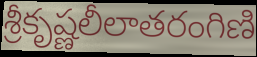
శ్రీకృష్ణలీలాతరంగిణి